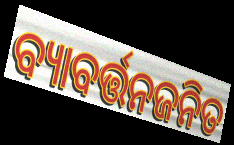
ବ୍ୟାବର୍ତ୍ତନଜନିତ